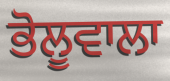
ਭੋਲੂਵਾਲਾ